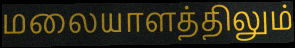
மலையாளத்திலும்